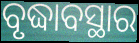
ବୃଦ୍ଧାବସ୍ଥାର